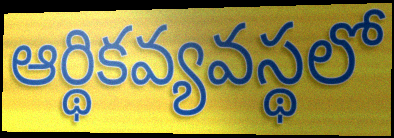
ఆర్థికవ్యవస్థలో